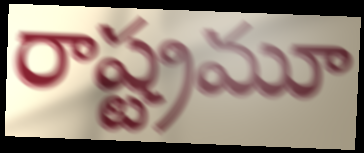
రాష్ట్రమూ